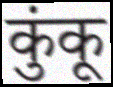
कुंकू